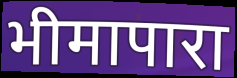
भीमापारा